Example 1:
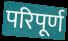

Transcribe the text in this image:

परिपूर्ण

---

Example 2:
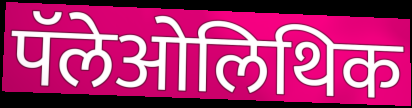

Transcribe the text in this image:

पॅलेओलिथिक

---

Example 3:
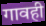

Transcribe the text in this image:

गावही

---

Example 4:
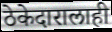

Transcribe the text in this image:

ठेकेदारालाही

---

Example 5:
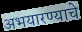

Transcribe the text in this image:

अभयारण्याचे